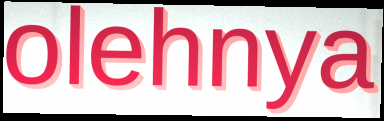
olehnya